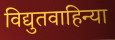
विद्युतवाहिन्या